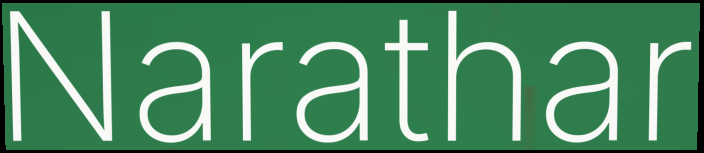
Narathar